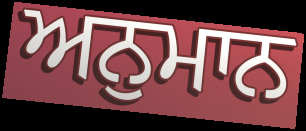
ਅਨੁਮਾਨ